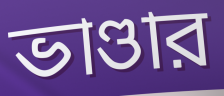
ভাণ্ডার